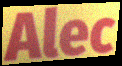
Alec